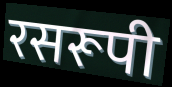
रसरूपी